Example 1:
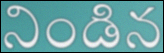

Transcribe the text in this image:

నిండిన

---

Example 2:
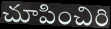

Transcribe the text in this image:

చూపించిరి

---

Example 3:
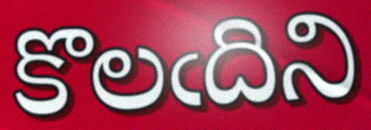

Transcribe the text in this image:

కొలఁదిని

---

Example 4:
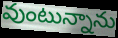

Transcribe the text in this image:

వుంటున్నాను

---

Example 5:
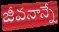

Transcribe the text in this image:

జీవనాన్నే